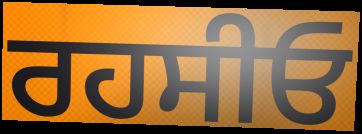
ਰਹਸੀਓ